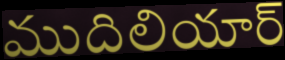
ముదిలియార్